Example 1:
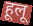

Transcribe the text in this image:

हूलू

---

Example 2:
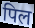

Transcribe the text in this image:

पिल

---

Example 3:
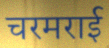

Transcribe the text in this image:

चरमराई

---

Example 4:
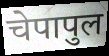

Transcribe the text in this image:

चेपापुल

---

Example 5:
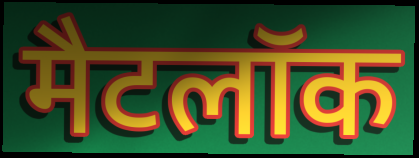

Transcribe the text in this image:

मैटलॉक